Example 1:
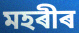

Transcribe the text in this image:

মহৰীৰ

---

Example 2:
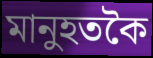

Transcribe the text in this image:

মানুহতকৈ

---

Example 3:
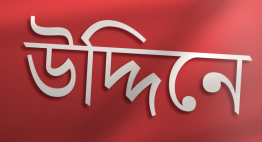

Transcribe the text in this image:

উদ্দিনে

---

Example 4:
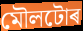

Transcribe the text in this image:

মৌলটোৰ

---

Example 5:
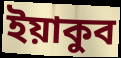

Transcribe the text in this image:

ইয়াকুব